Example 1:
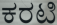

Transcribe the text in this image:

ಕರಟಿ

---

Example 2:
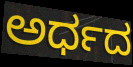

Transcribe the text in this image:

ಅರ್ಧದ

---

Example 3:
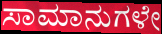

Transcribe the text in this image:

ಸಾಮಾನುಗಳೇ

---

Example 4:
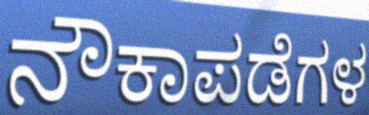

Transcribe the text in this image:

ನೌಕಾಪಡೆಗಳ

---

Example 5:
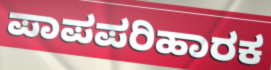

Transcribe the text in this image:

ಪಾಪಪರಿಹಾರಕ